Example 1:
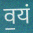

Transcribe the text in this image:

व॒यं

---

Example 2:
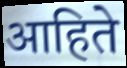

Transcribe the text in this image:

आहिते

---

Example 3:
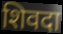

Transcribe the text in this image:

शिवदा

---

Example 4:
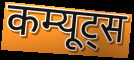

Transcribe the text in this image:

कम्यूट्स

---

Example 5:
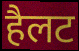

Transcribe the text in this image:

हैलट